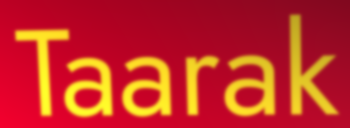
Taarak